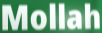
Mollah